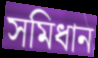
সমিধান